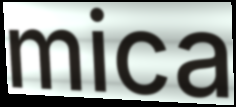
mica